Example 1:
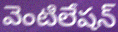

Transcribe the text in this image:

వెంటిలేషన్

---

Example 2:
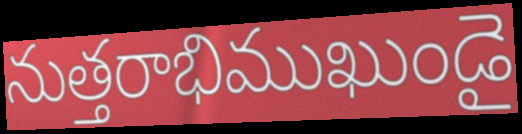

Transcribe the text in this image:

నుత్తరాభిముఖుండై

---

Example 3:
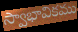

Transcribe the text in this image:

స్వాభావికము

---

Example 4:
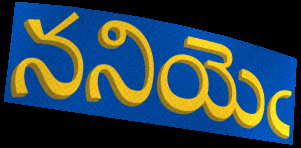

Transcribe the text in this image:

ననియెఁ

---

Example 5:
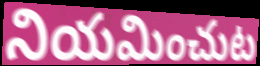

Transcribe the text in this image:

నియమించుట